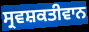
ਸ੍ਰਵਸ਼ਕਤੀਵਾਨ